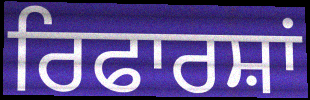
ਰਿਫਾਰਸ਼ਾਂ